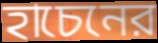
হাচেনের